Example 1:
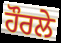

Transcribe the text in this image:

ਹੌਰਲੇ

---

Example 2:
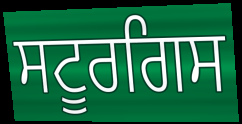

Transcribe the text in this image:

ਸਟੂਰਗਿਸ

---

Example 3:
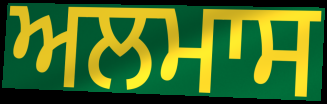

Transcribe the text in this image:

ਅਲਮਾਸ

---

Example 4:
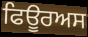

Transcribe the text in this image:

ਫਿਊਰਅਸ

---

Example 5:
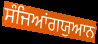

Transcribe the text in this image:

ਸੰਜਿਆਂਗਯੁਆਨ